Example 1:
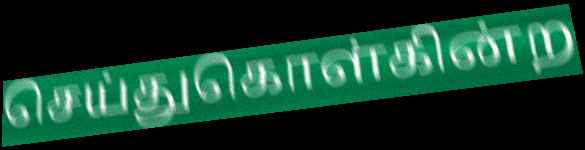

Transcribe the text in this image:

செய்துகொள்கின்ற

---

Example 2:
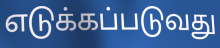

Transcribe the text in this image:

எடுக்கப்படுவது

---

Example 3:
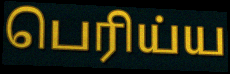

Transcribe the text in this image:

பெரிய்ய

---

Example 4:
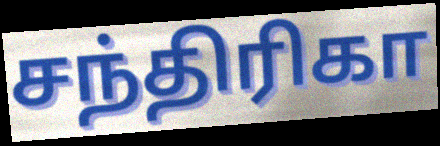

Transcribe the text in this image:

சந்திரிகா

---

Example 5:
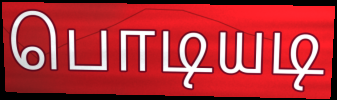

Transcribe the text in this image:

பொடியடி